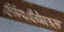
ਇੰਸਪੀਰੇਸ਼ਨਲ